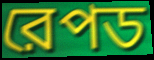
রেপড